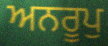
ਅਨਰੂਪੁ